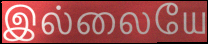
இல்லையே